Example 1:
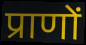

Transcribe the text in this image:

प्राणों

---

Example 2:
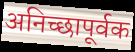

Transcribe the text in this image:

अनिच्छापूर्वक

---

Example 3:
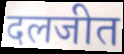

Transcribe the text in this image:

दलजीत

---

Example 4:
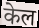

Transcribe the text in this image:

केल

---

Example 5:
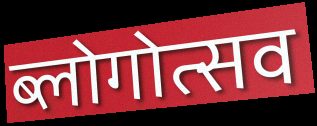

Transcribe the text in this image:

ब्लोगोत्सव